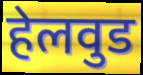
हेलवुड